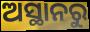
ଅସ୍ଥାନରୁ